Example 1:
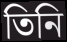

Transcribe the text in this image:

তিনি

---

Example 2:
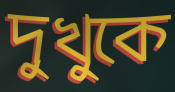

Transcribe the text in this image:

দুখুকে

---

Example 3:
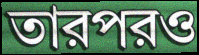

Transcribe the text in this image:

তারপরও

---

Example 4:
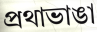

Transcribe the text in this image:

প্রথাভাঙা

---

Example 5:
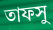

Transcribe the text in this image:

তাফসু